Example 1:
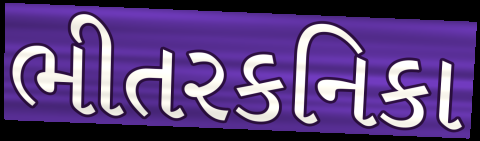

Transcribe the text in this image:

ભીતરકનિકા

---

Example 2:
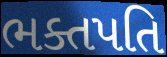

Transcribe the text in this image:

ભક્તપતિ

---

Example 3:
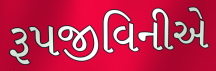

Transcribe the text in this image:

રૂપજીવિનીએ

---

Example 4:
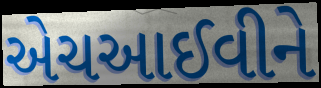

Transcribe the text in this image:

એચઆઈવીને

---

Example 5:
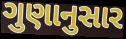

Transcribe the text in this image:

ગુણાનુસાર